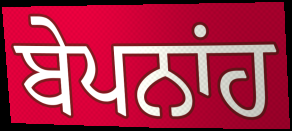
ਬੇਪਨਾਂਹ